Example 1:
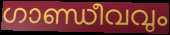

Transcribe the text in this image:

ഗാണ്ഡീവവും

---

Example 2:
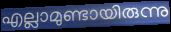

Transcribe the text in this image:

എല്ലാമുണ്ടായിരുന്നു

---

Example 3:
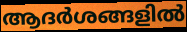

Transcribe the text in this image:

ആദർശങ്ങളിൽ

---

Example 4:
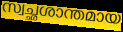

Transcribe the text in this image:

സ്വച്ഛശാന്തമായ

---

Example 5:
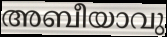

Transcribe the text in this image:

അബീയാവു